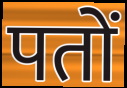
पतों